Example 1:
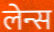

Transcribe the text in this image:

लेन्स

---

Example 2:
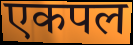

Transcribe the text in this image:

एकपल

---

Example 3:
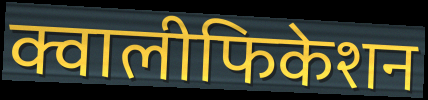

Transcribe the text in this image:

क्वालीफिकेशन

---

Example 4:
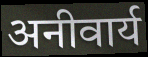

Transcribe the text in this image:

अनीवार्य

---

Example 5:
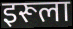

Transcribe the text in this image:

इरूला